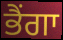
ਭੈਂਗਾ